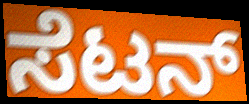
ಸೆಟನ್